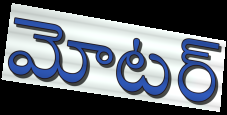
మోటర్